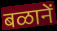
बळानें